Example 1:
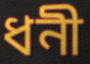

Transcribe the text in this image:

ধনী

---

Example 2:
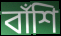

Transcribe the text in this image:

বাঁশি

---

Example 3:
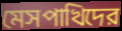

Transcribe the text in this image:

মেসপাখিদের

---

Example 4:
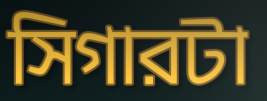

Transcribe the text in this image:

সিগারটা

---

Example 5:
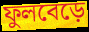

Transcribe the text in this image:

ফুলবেড়ে